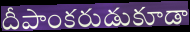
దీపాంకరుడుకూడా